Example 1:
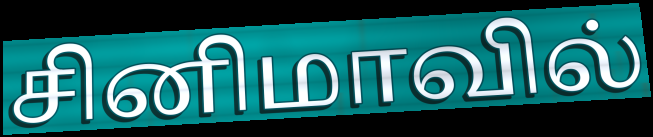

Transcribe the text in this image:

சினிமாவில்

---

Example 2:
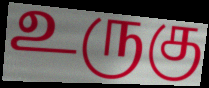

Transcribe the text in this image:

உருகு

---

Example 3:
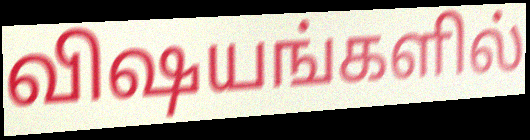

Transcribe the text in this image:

விஷயங்களில்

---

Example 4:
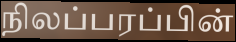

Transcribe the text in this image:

நிலப்பரப்பின்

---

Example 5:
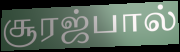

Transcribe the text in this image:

சூரஜ்பால்